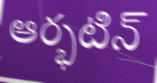
ఆర్భటిన్